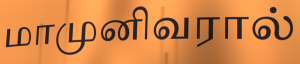
மாமுனிவரால்